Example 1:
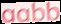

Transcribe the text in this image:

aabb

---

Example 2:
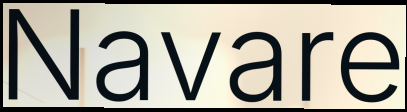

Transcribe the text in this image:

Navare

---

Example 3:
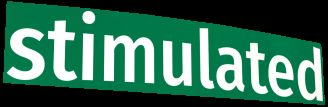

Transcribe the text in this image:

stimulated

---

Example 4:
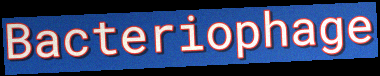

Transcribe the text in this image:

Bacteriophage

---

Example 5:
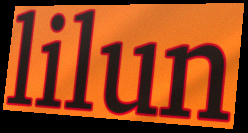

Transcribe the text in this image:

lilun